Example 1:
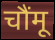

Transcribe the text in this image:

चौंमू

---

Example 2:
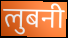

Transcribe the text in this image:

लुबनी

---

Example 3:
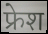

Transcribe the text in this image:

फ्रेश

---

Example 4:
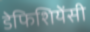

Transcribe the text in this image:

डेफिशियेंसी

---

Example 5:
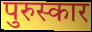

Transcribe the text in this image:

पुरुस्‍कार